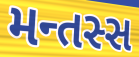
મન્તસ્સ